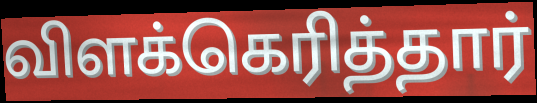
விளக்கெரித்தார்